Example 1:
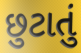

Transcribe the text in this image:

છુટાતું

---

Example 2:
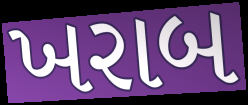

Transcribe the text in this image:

ખરાબ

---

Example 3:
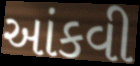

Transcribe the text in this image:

આંકવી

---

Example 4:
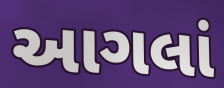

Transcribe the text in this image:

આગલાં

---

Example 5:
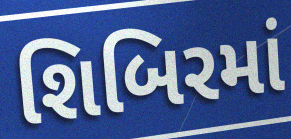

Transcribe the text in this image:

શિબિરમાં